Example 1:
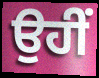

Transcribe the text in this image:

ਉਹੀਂ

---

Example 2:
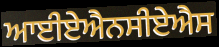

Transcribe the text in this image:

ਆਈਏਐਨਸੀਏਐਸ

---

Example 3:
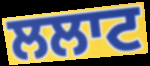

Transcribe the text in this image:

ਲਲਾਟ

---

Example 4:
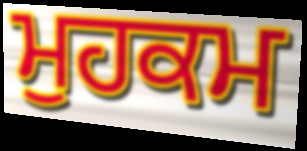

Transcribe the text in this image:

ਮੁਹਕਮ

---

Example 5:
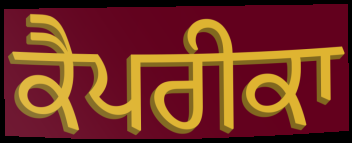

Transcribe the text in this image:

ਕੈਪਰੀਕਾ